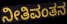
ನೀತಿವಂತನ